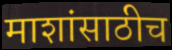
माशांसाठीच